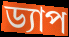
ড্যাপ